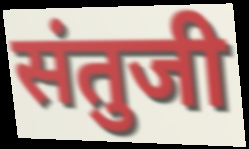
संतुजी